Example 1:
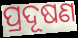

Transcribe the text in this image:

ପ୍ରଦୂଷଣ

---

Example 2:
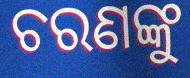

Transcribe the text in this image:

ଚରଣଙ୍କୁ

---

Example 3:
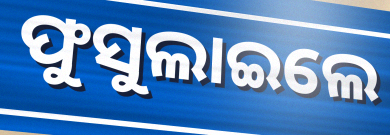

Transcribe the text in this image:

ଫୁସୁଲାଇଲେ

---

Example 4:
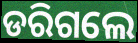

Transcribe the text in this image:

ଡରିଗଲେ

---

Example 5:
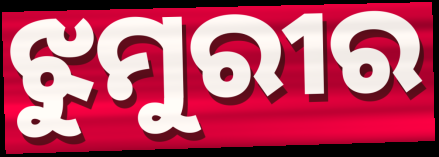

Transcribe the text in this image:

ଝୁମୁରୀର